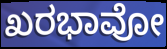
ಖರಭಾವೋ